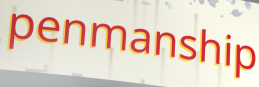
penmanship